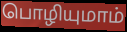
பொழியுமாம்